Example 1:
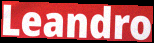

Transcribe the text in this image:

Leandro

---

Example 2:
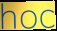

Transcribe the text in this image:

hoc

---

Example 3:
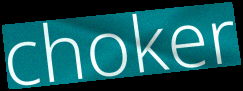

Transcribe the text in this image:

choker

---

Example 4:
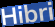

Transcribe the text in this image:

Hibri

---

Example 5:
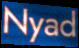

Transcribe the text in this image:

Nyad